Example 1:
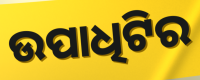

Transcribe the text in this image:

ଉପାଧିଟିର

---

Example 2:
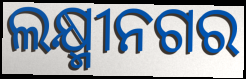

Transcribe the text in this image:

ଲକ୍ଷ୍ମୀନଗର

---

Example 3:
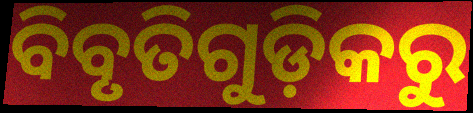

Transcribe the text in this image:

ବିବୃତିଗୁଡ଼ିକରୁ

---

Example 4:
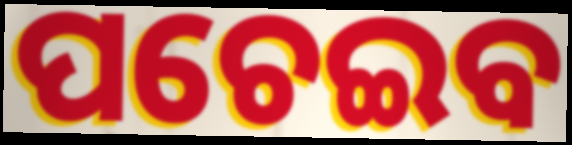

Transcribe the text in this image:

ପଚେଇବ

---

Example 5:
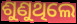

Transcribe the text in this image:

ଶୁଣୁଥିଲେ